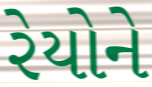
રેયોને